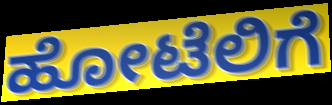
ಹೋಟೆಲಿಗೆ